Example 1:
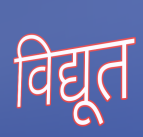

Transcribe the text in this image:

विद्यूत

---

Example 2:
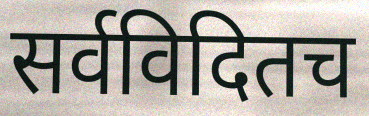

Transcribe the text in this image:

सर्वविदितच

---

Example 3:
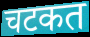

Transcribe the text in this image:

चटकत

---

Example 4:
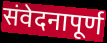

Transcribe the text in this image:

संवेदनापूर्ण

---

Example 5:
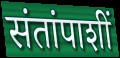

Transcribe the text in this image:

संतांपाशीं